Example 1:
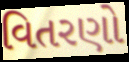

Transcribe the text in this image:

વિતરણો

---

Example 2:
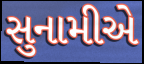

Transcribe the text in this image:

સુનામીએ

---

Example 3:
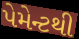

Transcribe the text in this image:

પેમેન્ટથી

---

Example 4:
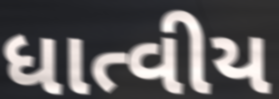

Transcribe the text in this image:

ધાત્વીય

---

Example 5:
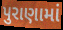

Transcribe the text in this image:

પુરાણામાં